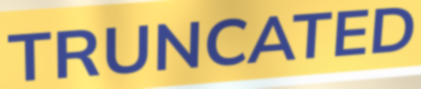
TRUNCATED